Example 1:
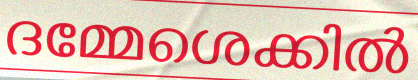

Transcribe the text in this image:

ദമ്മേശെക്കിൽ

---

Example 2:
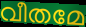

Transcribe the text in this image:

വീതമേ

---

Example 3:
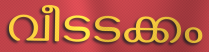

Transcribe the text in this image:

വീടടക്കം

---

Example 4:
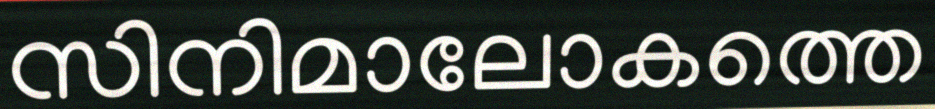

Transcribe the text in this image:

സിനിമാലോകത്തെ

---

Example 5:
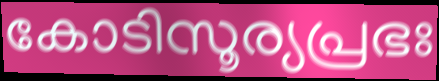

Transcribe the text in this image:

കോടിസൂര്യപ്രഭഃ